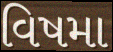
વિષમા